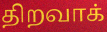
திறவாக்